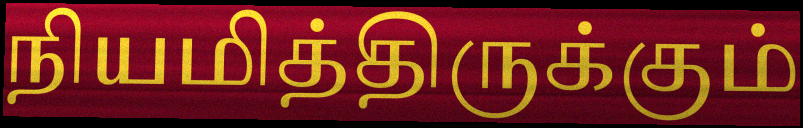
நியமித்திருக்கும்